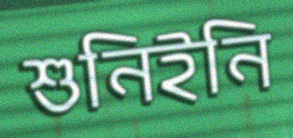
শুনিইনি